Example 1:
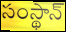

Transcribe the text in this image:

సంస్థాన్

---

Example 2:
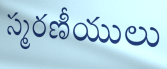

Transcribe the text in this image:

స్మరణీయులు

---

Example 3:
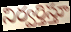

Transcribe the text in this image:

నిర్వర్తిస్తూ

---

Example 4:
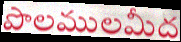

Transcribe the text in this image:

పొలములమీద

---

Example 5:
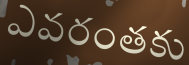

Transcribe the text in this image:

ఎవరంతకు